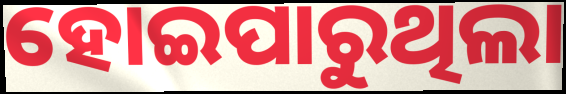
ହୋଇପାରୁଥିଲା